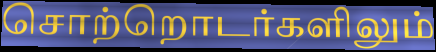
சொற்றொடர்களிலும்